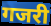
गजरी